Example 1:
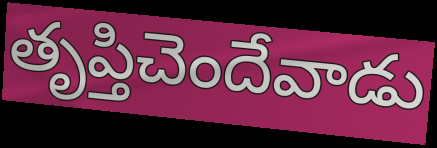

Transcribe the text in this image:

తృప్తిచెందేవాడు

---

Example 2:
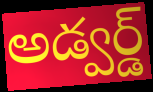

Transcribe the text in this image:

అడ్వర్డ్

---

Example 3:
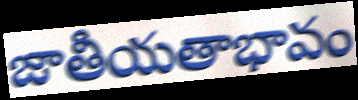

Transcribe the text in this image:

జాతీయతాభావం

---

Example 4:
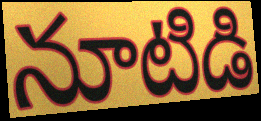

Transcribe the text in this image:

నూటిడి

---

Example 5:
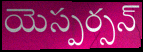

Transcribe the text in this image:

యెస్పర్సన్